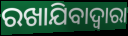
ରଖାଯିବାଦ୍ଵାରା